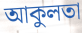
আকুলতা